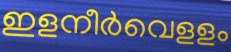
ഇളനീർവെളളം